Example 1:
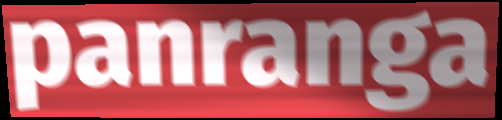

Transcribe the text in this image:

panranga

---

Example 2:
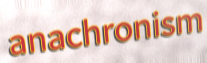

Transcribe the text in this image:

anachronism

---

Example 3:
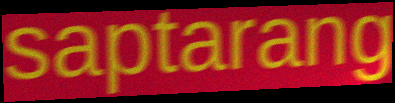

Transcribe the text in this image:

saptarang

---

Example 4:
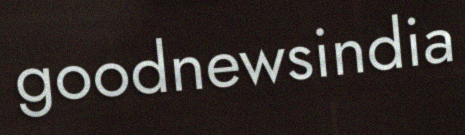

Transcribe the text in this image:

goodnewsindia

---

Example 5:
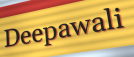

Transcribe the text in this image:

Deepawali